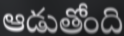
ఆడుతోంది